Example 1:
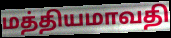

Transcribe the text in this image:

மத்தியமாவதி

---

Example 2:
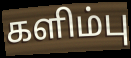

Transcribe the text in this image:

களிம்பு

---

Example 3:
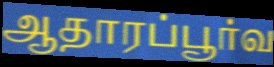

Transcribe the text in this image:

ஆதாரப்பூர்வ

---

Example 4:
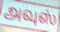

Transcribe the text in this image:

அவுஸ்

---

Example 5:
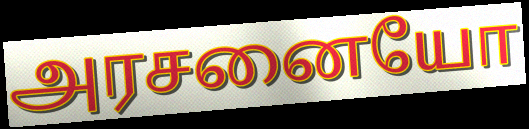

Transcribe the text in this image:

அரசனையோ